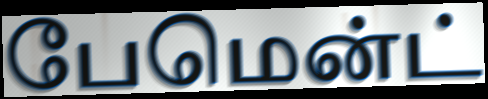
பேமென்ட்